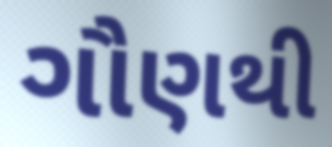
ગૌણથી